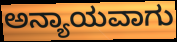
ಅನ್ಯಾಯವಾಗು